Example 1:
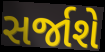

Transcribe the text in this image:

સર્જાશે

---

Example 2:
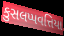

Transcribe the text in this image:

કુસલપ્પવત્તિયા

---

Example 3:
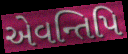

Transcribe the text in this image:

એવન્તિપિ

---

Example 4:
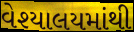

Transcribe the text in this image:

વેશ્યાલયમાંથી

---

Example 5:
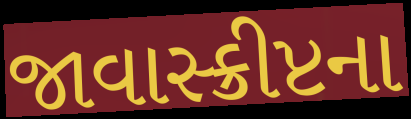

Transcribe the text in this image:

જાવાસ્ક્રીપ્ટના